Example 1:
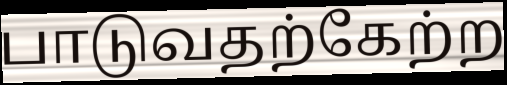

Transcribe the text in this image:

பாடுவதற்கேற்ற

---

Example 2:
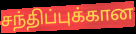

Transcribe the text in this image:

சந்திப்புக்கான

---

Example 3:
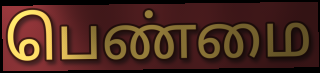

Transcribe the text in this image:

பெண்மை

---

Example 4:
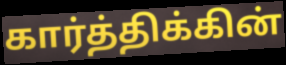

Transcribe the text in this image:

கார்த்திக்கின்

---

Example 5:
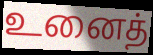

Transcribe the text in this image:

உனைத்